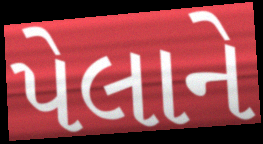
પેલાને